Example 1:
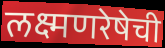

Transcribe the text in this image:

लक्ष्मणरेषेची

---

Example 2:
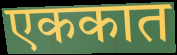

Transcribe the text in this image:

एककात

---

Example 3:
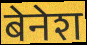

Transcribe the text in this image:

बेनेश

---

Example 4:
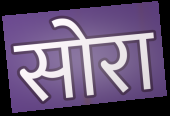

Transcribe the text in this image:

सोरा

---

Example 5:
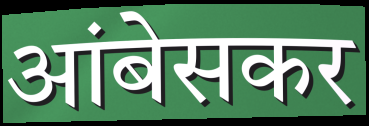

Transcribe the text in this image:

आंबेसकर